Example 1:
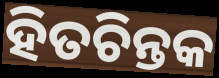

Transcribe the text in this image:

ହିତଚିନ୍ତକ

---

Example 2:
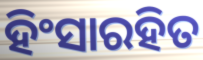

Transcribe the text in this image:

ହିଂସାରହିତ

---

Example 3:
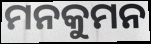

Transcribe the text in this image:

ମନକୁମନ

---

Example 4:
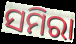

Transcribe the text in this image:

ସମିରା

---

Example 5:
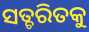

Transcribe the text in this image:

ସତ୍ଚରିତକୁ